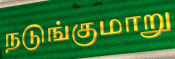
நடுங்குமாறு